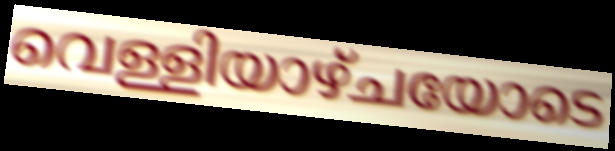
വെള്ളിയാഴ്ചയോടെ